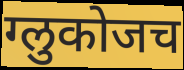
ग्लुकोजच